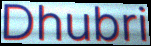
Dhubri